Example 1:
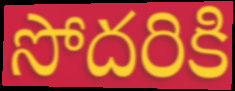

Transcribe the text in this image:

సోదరికి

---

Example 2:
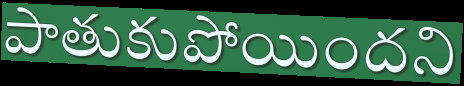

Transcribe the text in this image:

పాతుకుపోయిందని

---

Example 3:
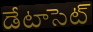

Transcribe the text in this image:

డేటాసెట్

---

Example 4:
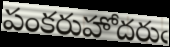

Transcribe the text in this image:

పంకరుహోదరుఁ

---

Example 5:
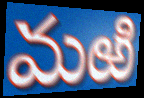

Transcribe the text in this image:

మఱి